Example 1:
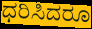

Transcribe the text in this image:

ಧರಿಸಿದರೂ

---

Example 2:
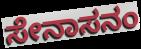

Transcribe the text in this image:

ಸೇನಾಸನಂ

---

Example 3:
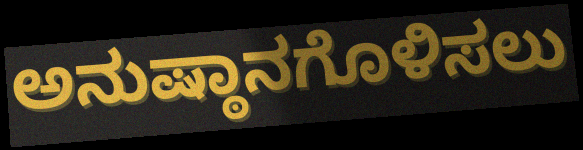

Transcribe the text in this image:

ಅನುಷ್ಠಾನಗೊಳಿಸಲು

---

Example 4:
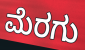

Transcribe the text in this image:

ಮೆರಗು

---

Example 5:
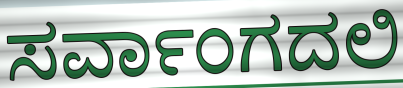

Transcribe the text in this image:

ಸರ್ವಾಂಗದಲಿ